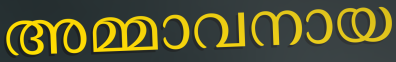
അമ്മാവനായ